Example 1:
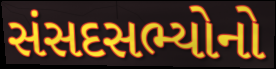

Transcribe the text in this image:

સંસદસભ્યોનો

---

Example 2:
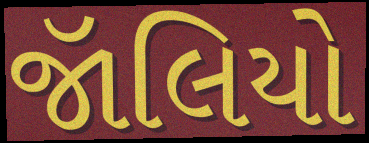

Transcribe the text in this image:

જૉલિયો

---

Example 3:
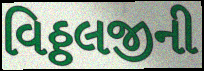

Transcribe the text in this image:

વિઠ્ઠલજીની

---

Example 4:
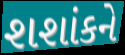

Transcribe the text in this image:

શશાંકને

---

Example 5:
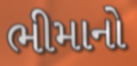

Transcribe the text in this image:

ભીમાનો